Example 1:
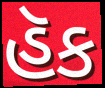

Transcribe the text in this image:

હૅક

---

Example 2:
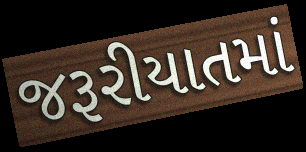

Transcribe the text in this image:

જરૂરીયાતમાં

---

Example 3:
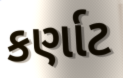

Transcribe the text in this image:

કર્ણાટ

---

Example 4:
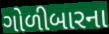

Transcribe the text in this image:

ગોળીબારના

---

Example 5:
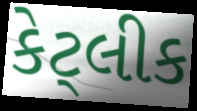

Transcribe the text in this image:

કેટ્લીક